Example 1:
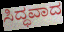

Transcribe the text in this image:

ಸಿದ್ಧವಾದ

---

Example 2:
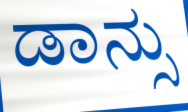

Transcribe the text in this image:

ಡಾನ್ಸು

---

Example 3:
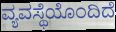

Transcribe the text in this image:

ವ್ಯವಸ್ಥೆಯೊಂದಿದೆ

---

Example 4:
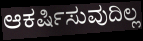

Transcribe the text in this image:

ಆಕರ್ಷಿಸುವುದಿಲ್ಲ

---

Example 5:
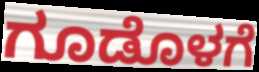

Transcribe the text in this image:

ಗೂಡೊಳಗೆ